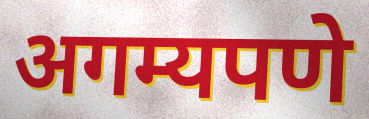
अगम्यपणे